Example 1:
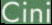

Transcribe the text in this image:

Cini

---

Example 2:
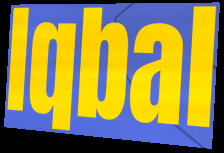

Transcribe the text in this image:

Iqbal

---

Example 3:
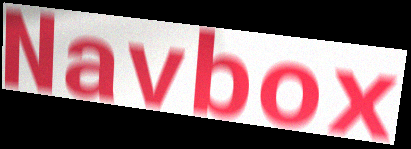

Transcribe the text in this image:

Navbox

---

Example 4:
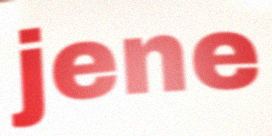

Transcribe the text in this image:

jene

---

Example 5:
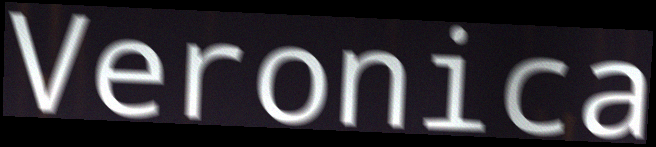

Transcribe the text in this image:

Veronica